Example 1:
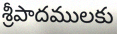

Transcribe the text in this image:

శ్రీపాదములకు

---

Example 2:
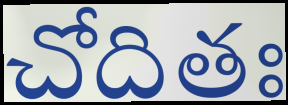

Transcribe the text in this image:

చోదితః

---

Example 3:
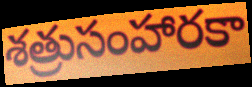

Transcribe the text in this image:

శత్రుసంహారకా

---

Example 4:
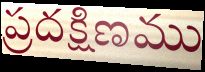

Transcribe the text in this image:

ప్రదక్షిణము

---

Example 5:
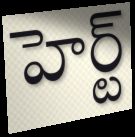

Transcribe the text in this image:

హెర్ట్